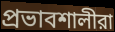
প্রভাবশালীরা